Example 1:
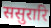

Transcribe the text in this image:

ससुरारि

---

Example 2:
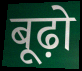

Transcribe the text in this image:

बूढ़ो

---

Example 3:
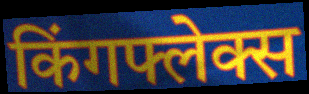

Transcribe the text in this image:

किंगफ्लेक्स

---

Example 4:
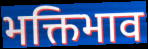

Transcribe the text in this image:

भक्तिभाव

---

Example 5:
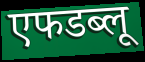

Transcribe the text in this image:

एफडब्लू